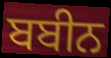
ਬਬੀਨ